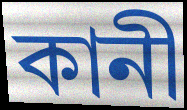
কানী